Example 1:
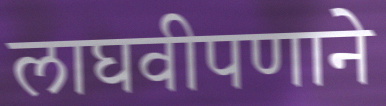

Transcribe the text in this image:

लाघवीपणाने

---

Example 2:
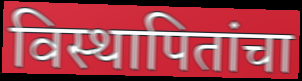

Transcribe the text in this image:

विस्थापितांचा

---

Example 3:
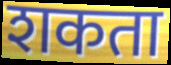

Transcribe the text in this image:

शकता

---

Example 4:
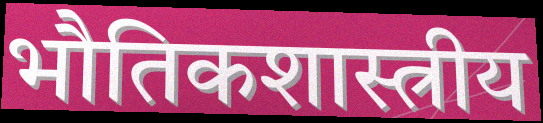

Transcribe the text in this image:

भौतिकशास्त्रीय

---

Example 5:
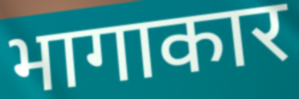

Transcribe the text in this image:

भागाकार